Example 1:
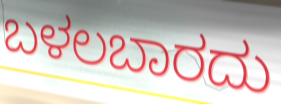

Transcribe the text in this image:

ಬಳಲಬಾರದು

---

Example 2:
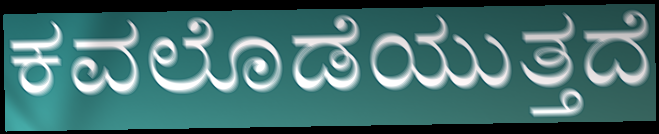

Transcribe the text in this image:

ಕವಲೊಡೆಯುತ್ತದೆ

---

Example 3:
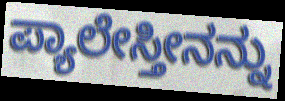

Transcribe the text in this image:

ಪ್ಯಾಲೇಸ್ತೀನನ್ನು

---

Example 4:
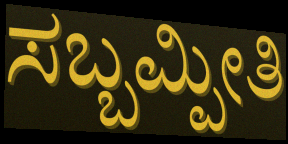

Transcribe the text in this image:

ಸಬ್ಬಮ್ಪೀತಿ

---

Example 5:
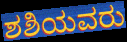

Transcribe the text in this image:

ಶಶಿಯವರು